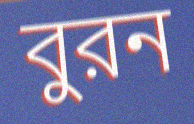
বুরন